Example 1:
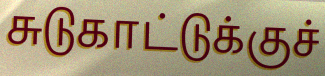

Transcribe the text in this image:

சுடுகாட்டுக்குச்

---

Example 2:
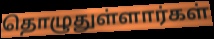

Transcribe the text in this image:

தொழுதுள்ளார்கள்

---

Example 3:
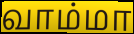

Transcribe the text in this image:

வாம்மா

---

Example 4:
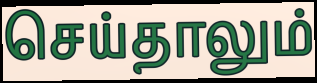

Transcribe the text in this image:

செய்தாலும்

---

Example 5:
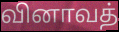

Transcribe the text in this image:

வினாவத்